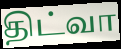
திட்வா